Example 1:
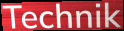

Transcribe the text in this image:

Technik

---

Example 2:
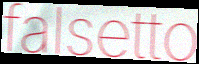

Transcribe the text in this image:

falsetto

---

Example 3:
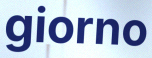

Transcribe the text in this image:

giorno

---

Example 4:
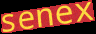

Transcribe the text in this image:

senex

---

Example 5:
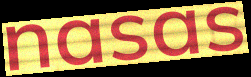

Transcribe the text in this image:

nasas